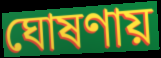
ঘোষণায়